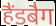
हैंडबैग